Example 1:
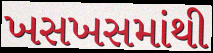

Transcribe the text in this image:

ખસખસમાંથી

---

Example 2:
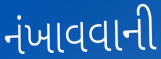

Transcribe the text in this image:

નંખાવવાની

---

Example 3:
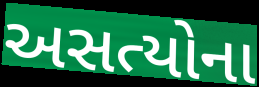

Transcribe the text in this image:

અસત્યોના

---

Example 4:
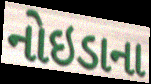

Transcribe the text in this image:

નોઇડાના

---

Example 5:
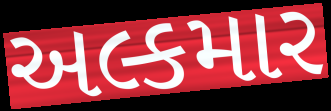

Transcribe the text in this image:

અલ્કમાર